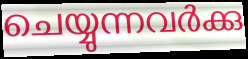
ചെയ്യുന്നവർക്കു